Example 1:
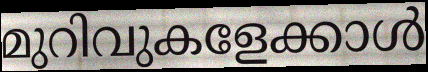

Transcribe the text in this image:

മുറിവുകളേക്കാൾ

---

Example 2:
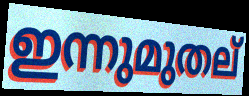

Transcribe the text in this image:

ഇന്നുമുതല്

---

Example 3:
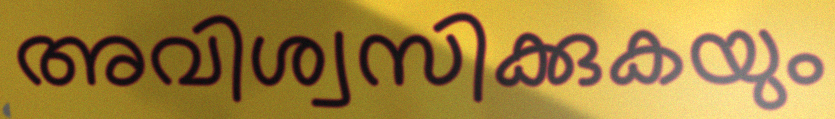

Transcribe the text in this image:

അവിശ്വസിക്കുകയും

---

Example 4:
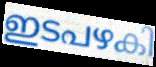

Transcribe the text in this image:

ഇടപഴകി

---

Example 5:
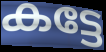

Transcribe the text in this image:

കട്ടേ